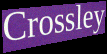
Crossley